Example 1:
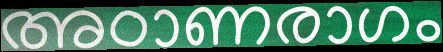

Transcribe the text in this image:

അഠാണരാഗം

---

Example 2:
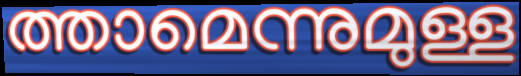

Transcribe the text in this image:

ത്താമെന്നുമുള്ള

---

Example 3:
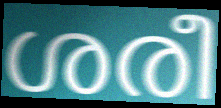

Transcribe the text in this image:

ശരീ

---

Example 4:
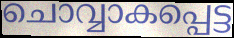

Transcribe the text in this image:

ചൊവ്വാകപ്പെട്ട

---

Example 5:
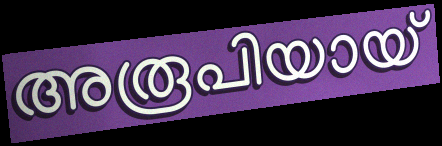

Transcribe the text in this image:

അരൂപിയായ്